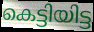
കെട്ടിയിട്ട